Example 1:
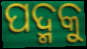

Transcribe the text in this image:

ପଦ୍ମକୁ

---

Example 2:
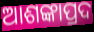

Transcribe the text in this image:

ଆଶଙ୍କାପ୍ରଦ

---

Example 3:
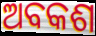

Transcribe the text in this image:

ଅବକଶ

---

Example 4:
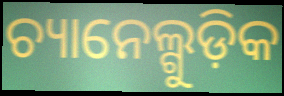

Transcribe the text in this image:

ଚ୍ୟାନେଲ୍ଗୁଡ଼ିକ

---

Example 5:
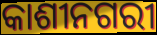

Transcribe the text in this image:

କାଶୀନଗରୀ